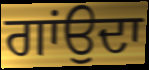
ਗਾਂਉਦਾ